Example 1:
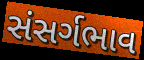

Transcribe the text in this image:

સંસર્ગભાવ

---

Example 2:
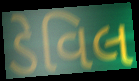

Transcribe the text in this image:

ડેવિલ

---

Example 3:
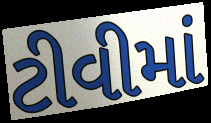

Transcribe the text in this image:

ટીવીમાં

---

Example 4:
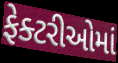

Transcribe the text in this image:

ફેક્ટરીઓમાં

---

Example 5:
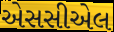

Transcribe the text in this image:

એસસીએલ